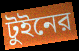
টুইনের